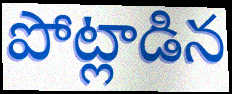
పోట్లాడిన